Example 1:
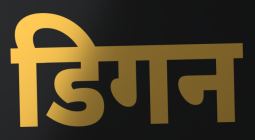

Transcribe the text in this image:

डिगन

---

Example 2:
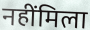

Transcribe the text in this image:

नहींमिला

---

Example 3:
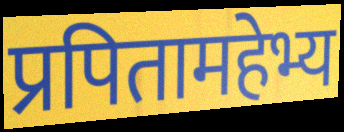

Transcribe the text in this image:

प्रपितामहेभ्य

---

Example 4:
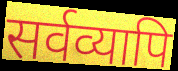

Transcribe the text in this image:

सर्वव्यापि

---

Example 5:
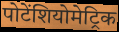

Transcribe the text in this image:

पोटेंशियोमेट्रिक